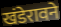
खंडेरावने